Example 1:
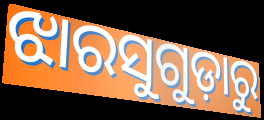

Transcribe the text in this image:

ଝାରସୁଗୁଡ଼ାରୁ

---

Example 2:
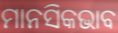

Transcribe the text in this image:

ମାନସିକଭାବ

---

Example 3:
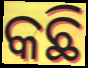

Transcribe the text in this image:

କଛି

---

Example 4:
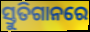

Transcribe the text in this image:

ସ୍ତୁତିଗାନରେ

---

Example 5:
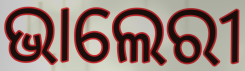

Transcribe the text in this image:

ଭାଲେରୀ